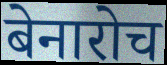
बेनारोच